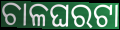
ଚାଳଘରଟା